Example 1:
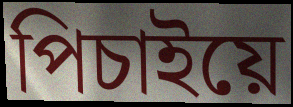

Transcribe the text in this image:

পিচাইয়ে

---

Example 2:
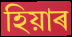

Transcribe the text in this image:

হিয়াৰ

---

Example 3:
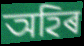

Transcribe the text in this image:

অহিৰ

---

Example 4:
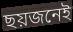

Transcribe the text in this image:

ছয়জনেই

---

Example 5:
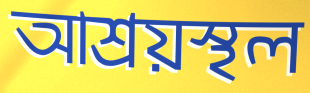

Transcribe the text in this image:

আশ্ৰয়স্থল